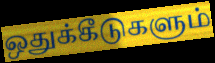
ஒதுக்கீடுகளும்